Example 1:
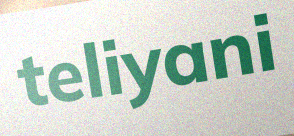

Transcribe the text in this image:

teliyani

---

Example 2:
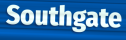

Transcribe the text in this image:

Southgate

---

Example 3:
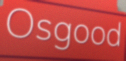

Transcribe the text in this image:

Osgood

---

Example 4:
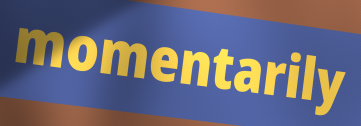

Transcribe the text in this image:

momentarily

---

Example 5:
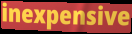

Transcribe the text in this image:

inexpensive